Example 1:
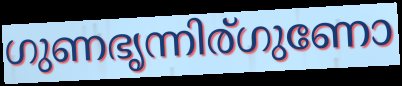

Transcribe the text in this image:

ഗുണഭൃന്നിര്ഗുണോ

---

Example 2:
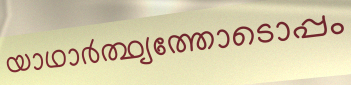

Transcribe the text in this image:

യാഥാർത്ഥ്യത്തോടൊപ്പം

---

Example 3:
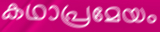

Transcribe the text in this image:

കഥാപ്രമേയം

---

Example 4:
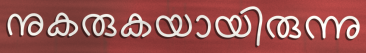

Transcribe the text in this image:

നുകരുകയായിരുന്നു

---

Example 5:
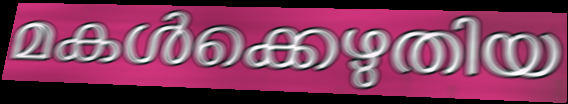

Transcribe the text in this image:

മകൾക്കെഴുതിയ